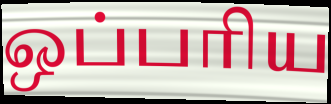
ஒப்பரிய